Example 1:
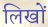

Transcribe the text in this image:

लिखों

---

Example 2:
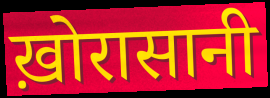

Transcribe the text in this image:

ख़ोरासानी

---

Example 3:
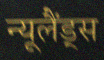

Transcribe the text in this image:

न्यूलैंड्स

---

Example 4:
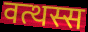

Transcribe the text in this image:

वत्थस्स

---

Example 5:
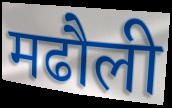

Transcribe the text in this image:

मढौली